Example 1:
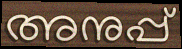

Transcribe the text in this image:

അനുപ്പ്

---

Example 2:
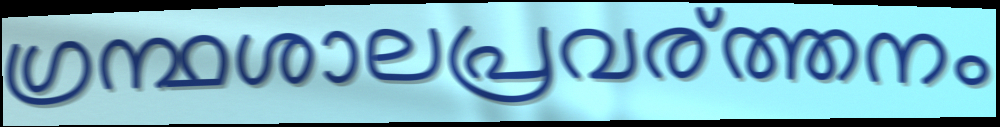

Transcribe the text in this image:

ഗ്രന്ഥശാലപ്രവര്ത്തനം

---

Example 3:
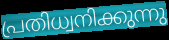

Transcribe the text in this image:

പ്രതിധ്വനിക്കുന്നു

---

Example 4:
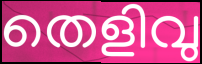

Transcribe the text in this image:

തെളിവു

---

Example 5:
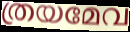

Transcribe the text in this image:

ത്രയമേവ